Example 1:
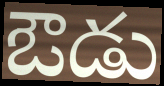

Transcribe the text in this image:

ఔడు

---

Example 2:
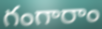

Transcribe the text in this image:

గంగారాం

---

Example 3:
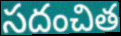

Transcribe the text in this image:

సదంచిత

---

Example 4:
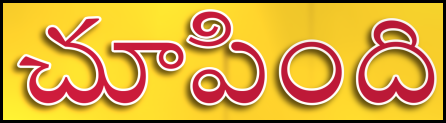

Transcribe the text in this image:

చూపింది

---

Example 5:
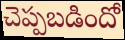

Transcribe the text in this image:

చెప్పబడిందో